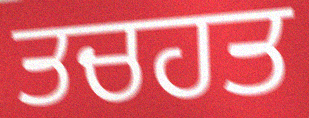
ਤਚਹਤ